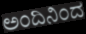
ಅಂದಿನಿಂದ